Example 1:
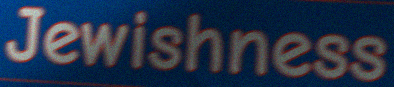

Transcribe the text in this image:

Jewishness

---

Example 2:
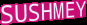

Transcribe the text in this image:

SUSHMEY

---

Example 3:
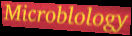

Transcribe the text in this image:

Microblology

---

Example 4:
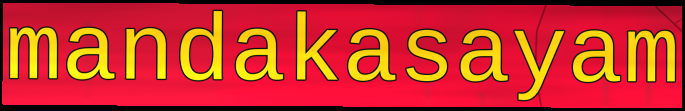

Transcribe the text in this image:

mandakasayam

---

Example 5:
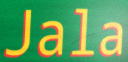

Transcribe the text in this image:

Jala